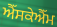
ਐੱਸਕੇਐੱਮ